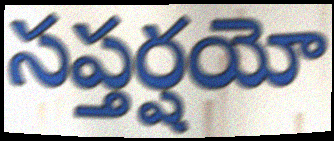
సప్తర్షయో